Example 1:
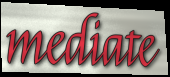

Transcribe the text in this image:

mediate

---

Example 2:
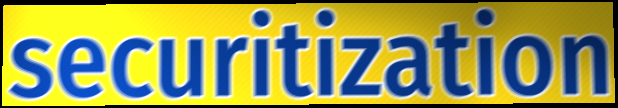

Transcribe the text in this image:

securitization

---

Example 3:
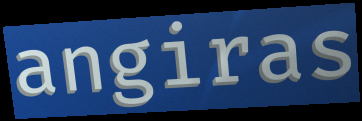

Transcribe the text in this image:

angiras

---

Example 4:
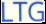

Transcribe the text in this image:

LTG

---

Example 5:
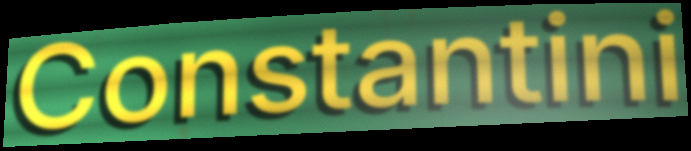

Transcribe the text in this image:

Constantini